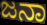
ಜನಾ